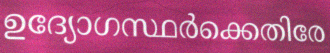
ഉദ്യോഗസ്ഥർക്കെതിരേ